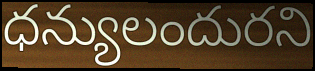
ధన్యులందురని